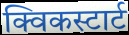
क्विकस्टार्ट